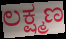
ಲಕ್ಷ್ಮಣ